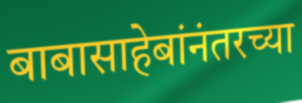
बाबासाहेबांनंतरच्या